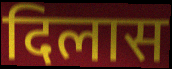
दिलास